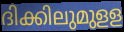
ദിക്കിലുമുളള